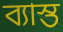
ব্যাস্ত